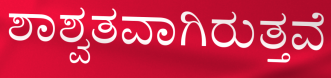
ಶಾಶ್ವತವಾಗಿರುತ್ತವೆ